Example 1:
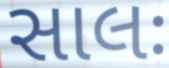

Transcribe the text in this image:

સાલઃ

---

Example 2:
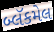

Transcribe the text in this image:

બ્લૅકમેલ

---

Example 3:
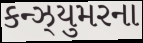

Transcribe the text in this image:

કન્ઝ્યુમરના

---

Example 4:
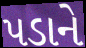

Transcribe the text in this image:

પડાને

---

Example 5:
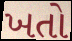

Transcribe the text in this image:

ખતો